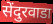
सेंदुरवाडा